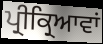
ਪ੍ਰੀਕ੍ਰਿਆਵਾਂ